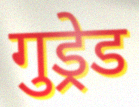
गुड्रेड